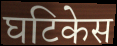
घटिकेस